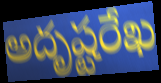
అదృష్టరేఖ